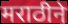
मराठीने